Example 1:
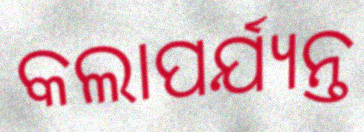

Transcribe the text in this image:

କଲାପର୍ଯ୍ୟନ୍ତ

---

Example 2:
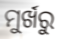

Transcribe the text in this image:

ମୁର୍ଖରୁ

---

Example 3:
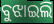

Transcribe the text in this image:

ବୁଝାଇଲି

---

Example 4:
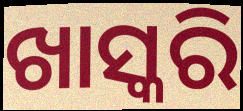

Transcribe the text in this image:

ଖାସ୍କରି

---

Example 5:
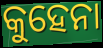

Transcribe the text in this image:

କୁହେନା